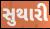
સુથારી